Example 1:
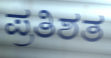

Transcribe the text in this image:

ಪ್ರತಿಶತ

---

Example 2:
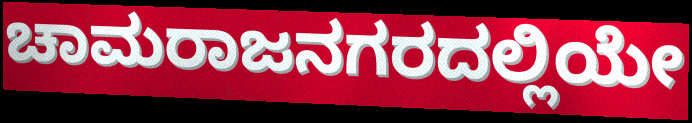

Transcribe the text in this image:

ಚಾಮರಾಜನಗರದಲ್ಲಿಯೇ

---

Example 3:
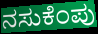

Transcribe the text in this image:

ನಸುಕೆಂಪು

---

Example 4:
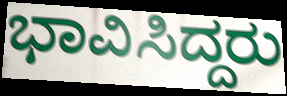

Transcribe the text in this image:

ಭಾವಿಸಿದ್ದರು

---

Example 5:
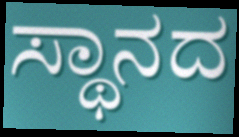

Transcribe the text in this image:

ಸ್ಥಾನದ